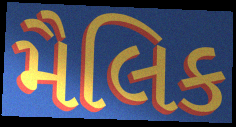
મૈલિક